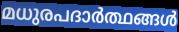
മധുരപദാർത്ഥങ്ങൾ